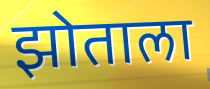
झोताला